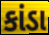
કાંડા